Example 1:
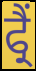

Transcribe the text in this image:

ਫ੍ਰੈਂ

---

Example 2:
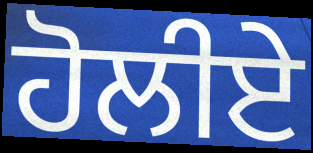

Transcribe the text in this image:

ਹੋਲੀਏ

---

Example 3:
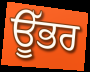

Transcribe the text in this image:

ਊੱਭਰ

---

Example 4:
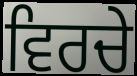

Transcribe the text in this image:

ਵਿਰਚੇ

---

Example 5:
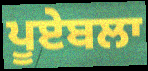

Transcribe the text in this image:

ਪੂਏਬਲਾ